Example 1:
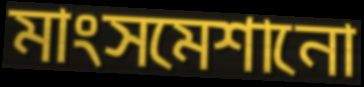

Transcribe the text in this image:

মাংসমেশানো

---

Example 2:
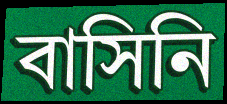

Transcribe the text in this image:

বাসিনি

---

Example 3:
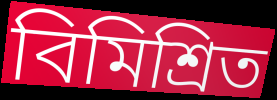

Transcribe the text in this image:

বিমিশ্রিত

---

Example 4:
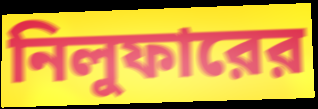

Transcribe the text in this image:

নিলুফারের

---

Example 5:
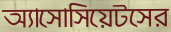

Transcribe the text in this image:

অ্যাসোসিয়েটসের